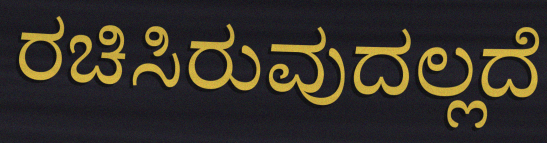
ರಚಿಸಿರುವುದಲ್ಲದೆ